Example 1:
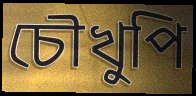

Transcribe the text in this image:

চৌখুপি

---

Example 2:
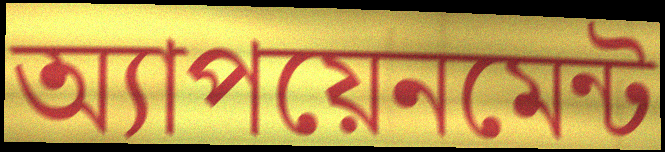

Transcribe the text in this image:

অ্যাপয়েনমেন্ট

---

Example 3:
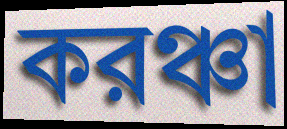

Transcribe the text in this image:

করঞ্চা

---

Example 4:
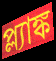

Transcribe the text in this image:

প্ল্যাঙ্ক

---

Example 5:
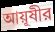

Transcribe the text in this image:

আয়ূষীর